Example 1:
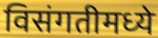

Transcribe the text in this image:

विसंगतीमध्ये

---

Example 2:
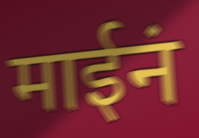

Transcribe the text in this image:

माईनं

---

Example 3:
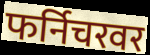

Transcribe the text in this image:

फर्निचरवर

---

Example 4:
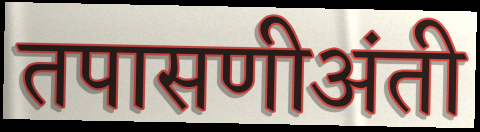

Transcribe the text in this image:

तपासणीअंती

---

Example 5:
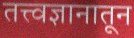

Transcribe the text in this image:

तत्त्वज्ञानातून